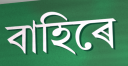
বাহিৰে